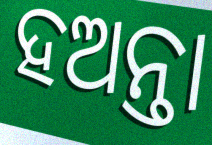
ହଅନ୍ତା